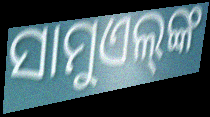
ସାମୁଏଲ୍‌ଙ୍କ